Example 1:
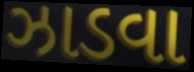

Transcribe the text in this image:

ઝાડવા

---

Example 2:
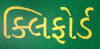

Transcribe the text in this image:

ક્લિફોર્ડ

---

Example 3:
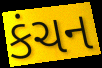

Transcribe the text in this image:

કંચન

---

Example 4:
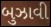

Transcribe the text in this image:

બુઝાવી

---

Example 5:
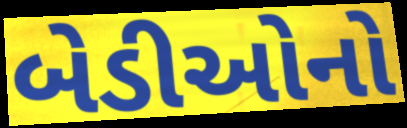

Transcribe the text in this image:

બેડીઓનો